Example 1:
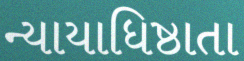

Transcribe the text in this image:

ન્યાયાધિષ્ઠાતા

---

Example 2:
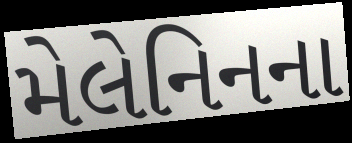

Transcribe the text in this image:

મેલેનિનના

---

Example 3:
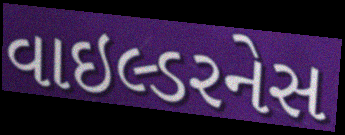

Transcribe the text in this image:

વાઇલ્ડરનેસ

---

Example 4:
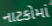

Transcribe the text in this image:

નાટકોમાં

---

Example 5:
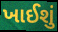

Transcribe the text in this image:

ખાઈશું